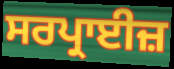
ਸਰਪ੍ਰਾਈਜ਼